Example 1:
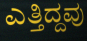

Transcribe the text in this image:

ಎತ್ತಿದ್ದವು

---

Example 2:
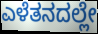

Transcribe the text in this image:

ಎಳೆತನದಲ್ಲೇ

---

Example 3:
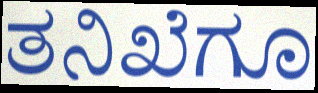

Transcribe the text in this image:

ತನಿಖೆಗೂ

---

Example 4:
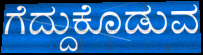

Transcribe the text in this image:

ಗೆದ್ದುಕೊಡುವ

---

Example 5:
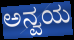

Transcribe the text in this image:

ಅನ್ವಯ